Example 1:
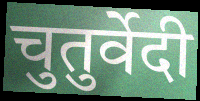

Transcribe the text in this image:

चुतुर्वेदी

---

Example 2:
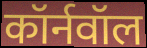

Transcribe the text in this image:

कॉर्नवॉल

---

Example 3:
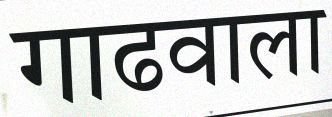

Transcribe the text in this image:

गाढवाला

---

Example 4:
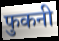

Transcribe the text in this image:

फुकनी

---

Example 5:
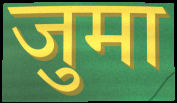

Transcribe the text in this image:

जुमा